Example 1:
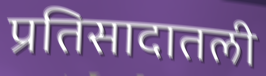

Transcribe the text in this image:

प्रतिसादातली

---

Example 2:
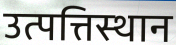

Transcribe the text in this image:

उत्पत्तिस्थान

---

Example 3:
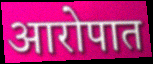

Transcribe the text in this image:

आरोपात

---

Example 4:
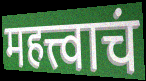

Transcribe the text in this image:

महत्त्वाचं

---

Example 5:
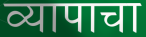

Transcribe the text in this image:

व्यापाचा